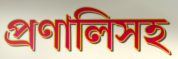
প্রণালিসহ